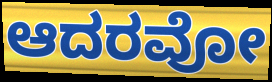
ಆದರವೋ